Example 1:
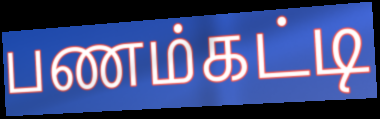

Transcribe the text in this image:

பணம்கட்டி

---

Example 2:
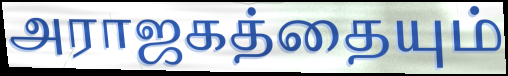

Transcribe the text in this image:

அராஜகத்தையும்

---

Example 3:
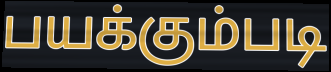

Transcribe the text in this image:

பயக்கும்படி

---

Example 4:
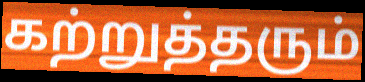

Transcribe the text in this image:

கற்றுத்தரும்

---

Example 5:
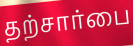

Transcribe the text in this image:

தற்சார்பை